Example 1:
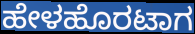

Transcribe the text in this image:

ಹೇಳಹೊರಟಾಗ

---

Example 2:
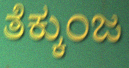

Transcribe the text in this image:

ತೆಕ್ಕುಂಜ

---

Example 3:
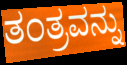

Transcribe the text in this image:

ತಂತ್ರವನ್ನು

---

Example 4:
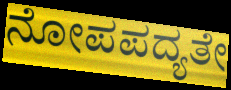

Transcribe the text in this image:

ನೋಪಪದ್ಯತೇ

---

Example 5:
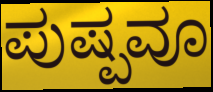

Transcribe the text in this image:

ಪುಷ್ಪವೂ